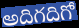
అదిగదిగో